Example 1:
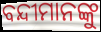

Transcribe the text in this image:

ବନ୍ଦୀମାନଙ୍କୁ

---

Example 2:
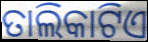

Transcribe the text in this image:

ତାଲିକାଟିଏ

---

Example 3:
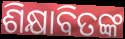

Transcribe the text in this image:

ଶିକ୍ଷାବିତଙ୍କ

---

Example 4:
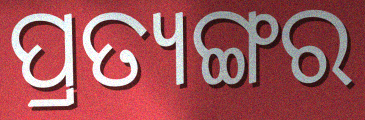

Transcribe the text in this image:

ପ୍ରତ୍ୟଙ୍ଗର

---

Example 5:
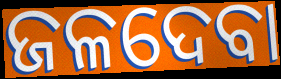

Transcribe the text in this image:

ଜଳଦେବା